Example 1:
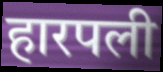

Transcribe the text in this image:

हारपली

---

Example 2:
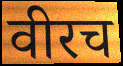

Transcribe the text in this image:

वीरच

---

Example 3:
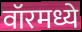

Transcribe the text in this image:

वॉरमध्ये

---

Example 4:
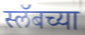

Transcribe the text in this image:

स्लॅबच्या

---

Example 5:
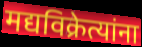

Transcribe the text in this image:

मद्यविक्रेत्यांना